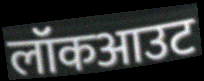
लॉकआउट